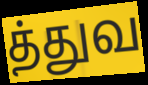
த்துவ